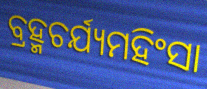
ବ୍ରହ୍ମଚର୍ଯ୍ୟମହିଂସା